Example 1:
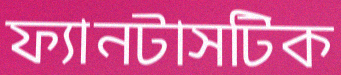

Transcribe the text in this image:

ফ্যানটাসটিক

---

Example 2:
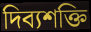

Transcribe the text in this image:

দিব্যশক্তি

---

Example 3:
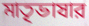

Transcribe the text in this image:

মাতৃভাষার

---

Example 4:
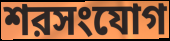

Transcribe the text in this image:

শরসংযোগ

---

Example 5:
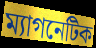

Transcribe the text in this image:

ম্যাগনেটিক